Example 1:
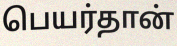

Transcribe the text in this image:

பெயர்தான்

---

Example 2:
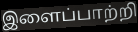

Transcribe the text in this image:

இளைப்பாற்றி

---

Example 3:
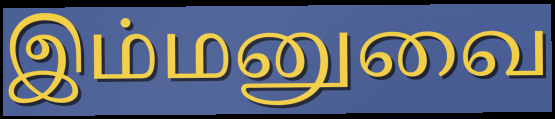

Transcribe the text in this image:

இம்மனுவை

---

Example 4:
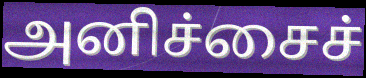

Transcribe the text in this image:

அனிச்சைச்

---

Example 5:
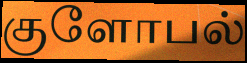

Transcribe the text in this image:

குளோபல்